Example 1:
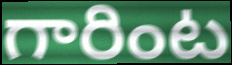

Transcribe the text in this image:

గారింట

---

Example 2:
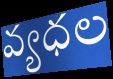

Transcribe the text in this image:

వ్యధల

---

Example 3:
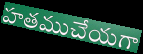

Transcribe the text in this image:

హతముచేయగా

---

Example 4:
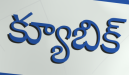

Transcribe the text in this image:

క్యూబిక్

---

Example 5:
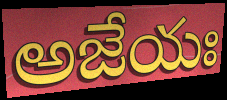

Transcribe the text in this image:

అజేయః